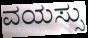
ವಯಸ್ಸು